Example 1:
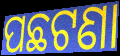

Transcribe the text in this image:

ପଛଟଣା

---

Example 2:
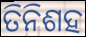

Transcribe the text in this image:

ତିନିଶହ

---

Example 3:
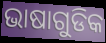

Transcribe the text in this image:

ଭାଷାଗୁଡିକ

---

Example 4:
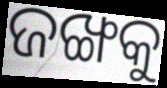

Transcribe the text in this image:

ଜଙ୍ଖକୁ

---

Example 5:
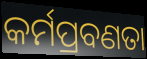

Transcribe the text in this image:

କର୍ମପ୍ରବଣତା